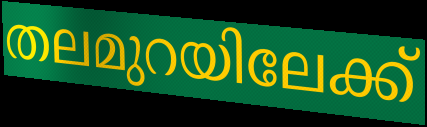
തലമുറയിലേക്ക്